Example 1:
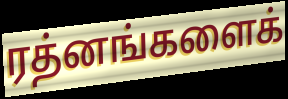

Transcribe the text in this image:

ரத்னங்களைக்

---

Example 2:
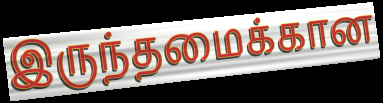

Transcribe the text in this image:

இருந்தமைக்கான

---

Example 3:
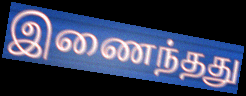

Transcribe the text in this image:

இணைந்தது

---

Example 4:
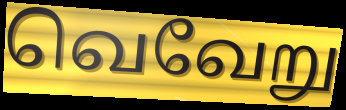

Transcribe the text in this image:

வெவேறு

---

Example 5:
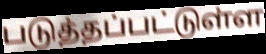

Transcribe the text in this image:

படுத்தப்பட்டுள்ள